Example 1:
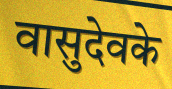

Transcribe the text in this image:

वासुदेवके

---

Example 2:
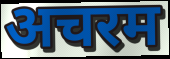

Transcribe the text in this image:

अचरम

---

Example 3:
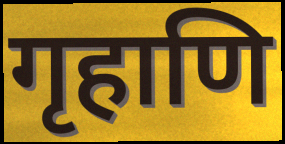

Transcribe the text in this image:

गृहाणि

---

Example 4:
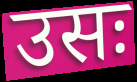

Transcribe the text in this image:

उसः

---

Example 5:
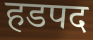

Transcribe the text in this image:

हडपद